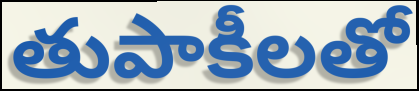
తుపాకీలతో